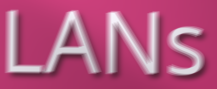
LANs